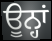
ਊਨ੍ਹਾਂ